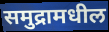
समुद्रामधील